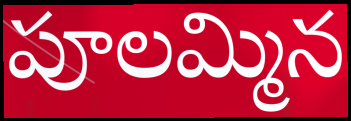
పూలమ్మిన